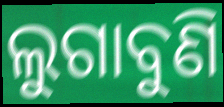
ଲୁଗାବୁଣି